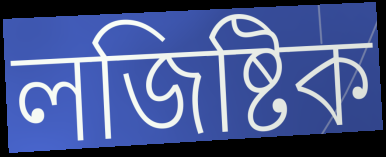
লজিষ্টিক